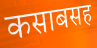
कसाबसह